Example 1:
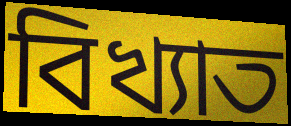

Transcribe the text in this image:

বিখ্যাত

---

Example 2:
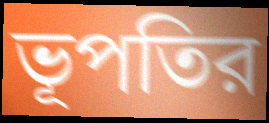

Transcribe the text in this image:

ভূপতির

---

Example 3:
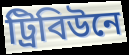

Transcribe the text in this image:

ট্রিবিউনে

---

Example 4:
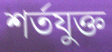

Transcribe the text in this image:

শর্তযুক্ত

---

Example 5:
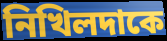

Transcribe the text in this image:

নিখিলদাকে